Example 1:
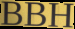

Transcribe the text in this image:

BBH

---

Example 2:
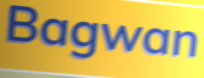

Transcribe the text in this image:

Bagwan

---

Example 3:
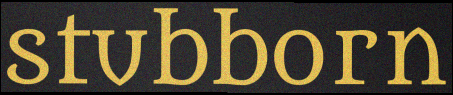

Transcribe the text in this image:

stubborn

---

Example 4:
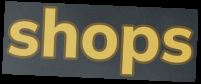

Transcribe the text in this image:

shops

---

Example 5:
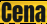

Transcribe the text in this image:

Cena